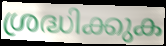
ശ്രദ്ധിക്കുക